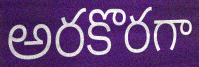
అరకొరగా